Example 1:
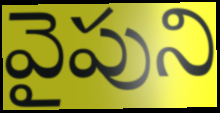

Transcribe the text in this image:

వైపుని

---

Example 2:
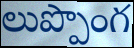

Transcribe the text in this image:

లుప్పొంగ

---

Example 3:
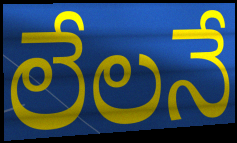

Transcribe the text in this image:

లేలనే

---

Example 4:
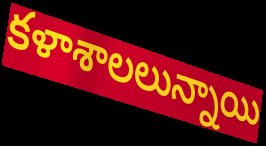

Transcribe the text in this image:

కళాశాలలున్నాయి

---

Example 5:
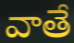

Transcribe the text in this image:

వాతే